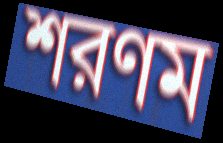
শরণম